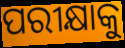
ପରୀକ୍ଷାକୁ